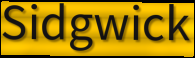
Sidgwick